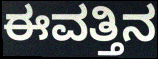
ಈವತ್ತಿನ